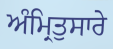
ਅੰਮ੍ਰਿਤੁਸਾਰੇ